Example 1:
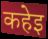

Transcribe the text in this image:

कहेइ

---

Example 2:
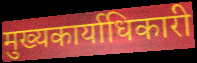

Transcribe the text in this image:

मुख्यकार्याधिकारी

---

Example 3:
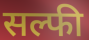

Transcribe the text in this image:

सल्फी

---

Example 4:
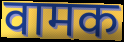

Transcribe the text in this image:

वामक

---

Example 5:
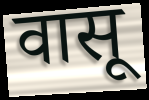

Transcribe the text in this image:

वासू